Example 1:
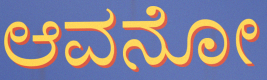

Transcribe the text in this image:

ಆವನೋ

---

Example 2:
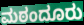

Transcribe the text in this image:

ಮಠಂದೂರು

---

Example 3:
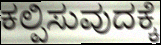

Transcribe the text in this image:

ಕಲ್ಪಿಸುವುದಕ್ಕೆ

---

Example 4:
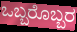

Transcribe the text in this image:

ಒಬ್ಬರೊಬ್ಬರ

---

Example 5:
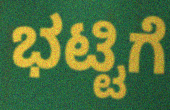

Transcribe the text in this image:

ಭಟ್ಟಿಗೆ